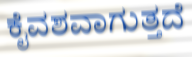
ಕೈವಶವಾಗುತ್ತದೆ